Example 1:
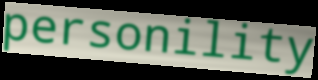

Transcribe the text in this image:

personility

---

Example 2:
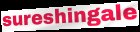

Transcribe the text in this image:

sureshingale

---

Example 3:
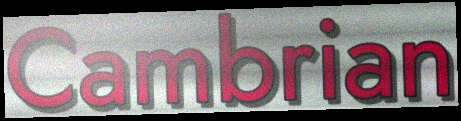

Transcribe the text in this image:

Cambrian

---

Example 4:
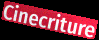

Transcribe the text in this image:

Cinecriture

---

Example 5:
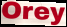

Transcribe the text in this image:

Orey